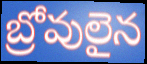
బ్రోవులైన